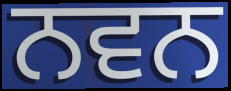
ਨਵਨ